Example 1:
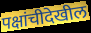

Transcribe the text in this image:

पक्षांचीदेखील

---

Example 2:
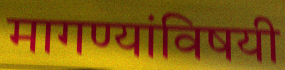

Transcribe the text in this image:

मागण्यांविषयी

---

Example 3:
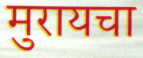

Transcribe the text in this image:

मुरायचा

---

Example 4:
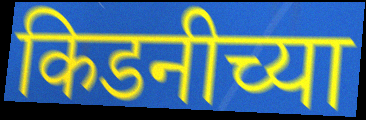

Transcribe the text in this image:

किडनीच्या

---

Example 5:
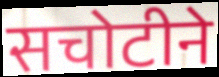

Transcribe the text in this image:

सचोटीने